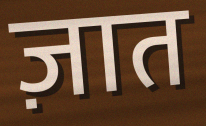
ज़ात